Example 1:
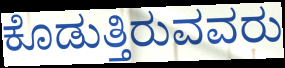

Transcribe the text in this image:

ಕೊಡುತ್ತಿರುವವರು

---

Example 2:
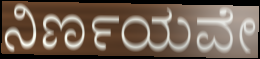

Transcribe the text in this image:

ನಿರ್ಣಯವೇ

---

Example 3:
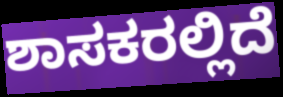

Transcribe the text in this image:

ಶಾಸಕರಲ್ಲಿದೆ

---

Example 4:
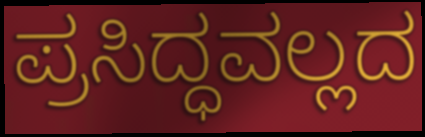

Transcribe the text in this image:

ಪ್ರಸಿದ್ಧವಲ್ಲದ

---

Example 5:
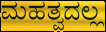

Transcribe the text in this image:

ಮಹತ್ವದಲ್ಲ